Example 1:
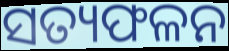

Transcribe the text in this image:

ସତ୍ୟଫଳନ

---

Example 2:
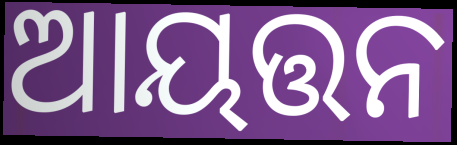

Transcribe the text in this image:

ଆୟତ୍ତନ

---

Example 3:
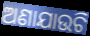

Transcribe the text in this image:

ଅଣାଯାଉଚି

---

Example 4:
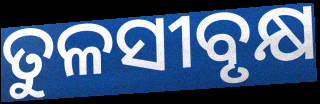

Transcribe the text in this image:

ତୁଳସୀବୃକ୍ଷ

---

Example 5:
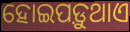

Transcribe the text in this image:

ହୋଇପଡ଼ୁଥାଏ